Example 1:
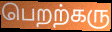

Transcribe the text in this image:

பெறற்கரு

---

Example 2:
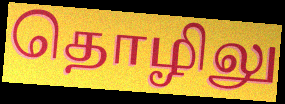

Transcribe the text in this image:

தொழிலு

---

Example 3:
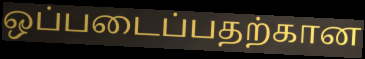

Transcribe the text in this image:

ஒப்படைப்பதற்கான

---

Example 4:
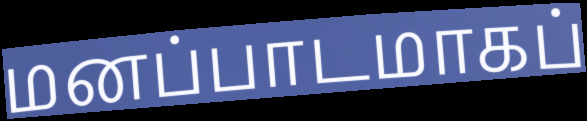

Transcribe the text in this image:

மனப்பாடமாகப்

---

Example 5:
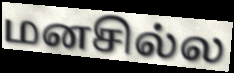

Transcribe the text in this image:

மனசில்ல